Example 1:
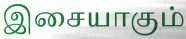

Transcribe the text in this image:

இசையாகும்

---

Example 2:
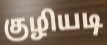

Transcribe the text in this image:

குழியடி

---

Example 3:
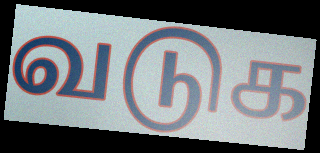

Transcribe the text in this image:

வடுக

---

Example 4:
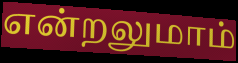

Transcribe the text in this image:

என்றலுமாம்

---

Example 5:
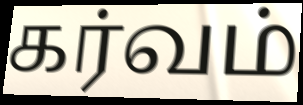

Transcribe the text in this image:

கர்வம்